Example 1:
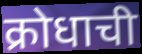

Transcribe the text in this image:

क्रोधाची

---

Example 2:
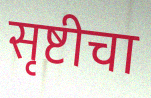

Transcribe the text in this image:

सृष्टीचा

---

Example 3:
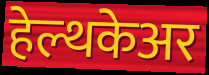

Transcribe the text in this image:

हेल्थकेअर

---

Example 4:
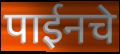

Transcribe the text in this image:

पाईनचे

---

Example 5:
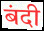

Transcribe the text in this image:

बंदी